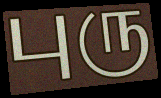
புரு